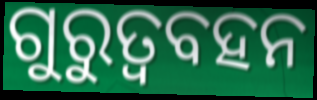
ଗୁରୁତ୍ୱବହନ